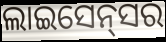
ଲାଇସେନ୍‌ସର